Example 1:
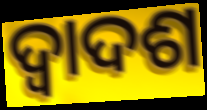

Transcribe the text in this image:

ଦ୍ବାଦଶ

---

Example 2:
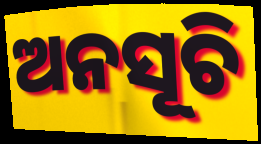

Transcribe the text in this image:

ଅନସୂଚି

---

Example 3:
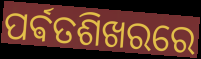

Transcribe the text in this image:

ପର୍ଵତଶିଖରରେ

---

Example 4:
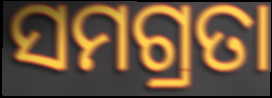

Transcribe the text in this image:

ସମଗ୍ରତା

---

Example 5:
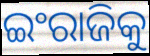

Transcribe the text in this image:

ଇଂରାଜିକୁ